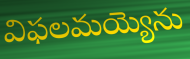
విఫలమయ్యెను